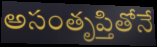
అసంతృప్తితోనే